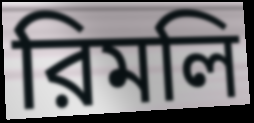
রিমলি